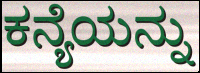
ಕನ್ಯೆಯನ್ನು